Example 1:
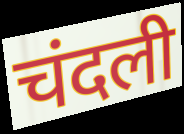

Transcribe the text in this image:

चंदली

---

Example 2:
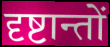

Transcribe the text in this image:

दृष्टान्तों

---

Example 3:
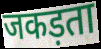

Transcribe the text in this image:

जकड़ता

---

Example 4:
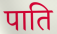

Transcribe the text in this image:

पाति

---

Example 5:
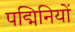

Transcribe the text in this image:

पद्मिनियों